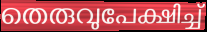
തെരുവുപേക്ഷിച്ച്